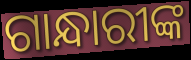
ଗାନ୍ଧାରୀଙ୍କ